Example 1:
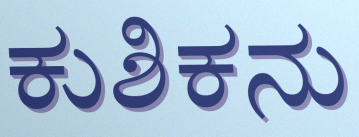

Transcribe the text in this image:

ಕುಶಿಕನು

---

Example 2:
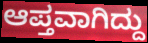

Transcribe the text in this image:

ಆಪ್ತವಾಗಿದ್ದು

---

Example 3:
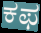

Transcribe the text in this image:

ಕಫ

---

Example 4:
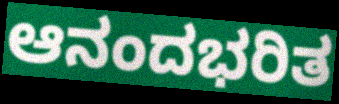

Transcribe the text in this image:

ಆನಂದಭರಿತ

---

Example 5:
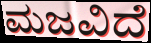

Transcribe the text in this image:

ಮಜವಿದೆ